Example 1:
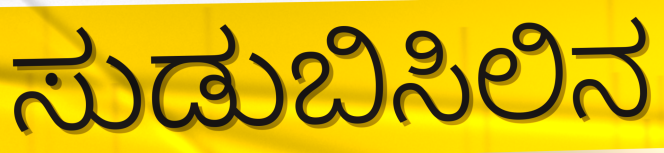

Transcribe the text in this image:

ಸುಡುಬಿಸಿಲಿನ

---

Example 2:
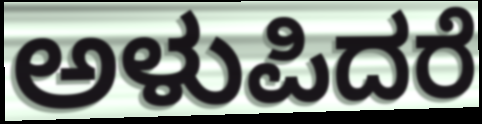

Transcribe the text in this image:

ಅಳುಪಿದರೆ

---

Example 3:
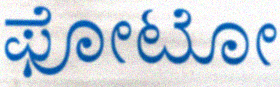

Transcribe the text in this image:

ಫೋಟೋ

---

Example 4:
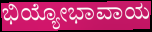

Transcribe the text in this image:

ಭಿಯ್ಯೋಭಾವಾಯ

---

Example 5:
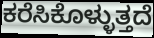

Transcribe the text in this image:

ಕರೆಸಿಕೊಳ್ಳುತ್ತದೆ